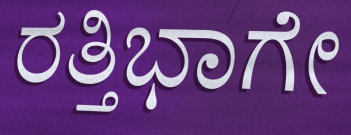
ರತ್ತಿಭಾಗೇ